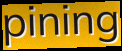
pining